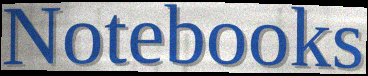
Notebooks